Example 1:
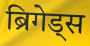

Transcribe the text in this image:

ब्रिगेड्स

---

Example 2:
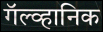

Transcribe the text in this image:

गॅल्व्हानिक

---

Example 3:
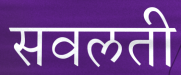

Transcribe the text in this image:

सवलती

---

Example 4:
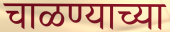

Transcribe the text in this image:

चाळण्याच्या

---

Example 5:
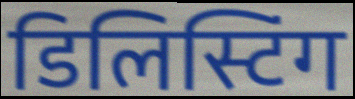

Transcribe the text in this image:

डिलिस्टिंग